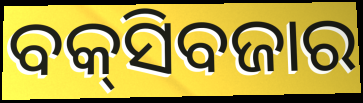
ବକ୍‍ସିବଜାର